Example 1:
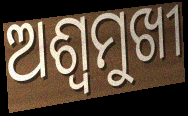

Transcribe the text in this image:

ଅଶ୍ୱମୁଖୀ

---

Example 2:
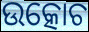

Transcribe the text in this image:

ଉତ୍କୋଚ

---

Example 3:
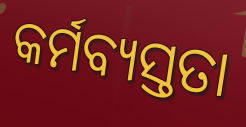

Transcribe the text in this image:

କର୍ମବ୍ୟସ୍ତତା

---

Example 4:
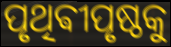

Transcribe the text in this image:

ପୃଥିଵୀପୃଷ୍ଠକୁ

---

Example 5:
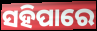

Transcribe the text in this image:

ସହିପାରେ